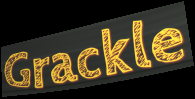
Grackle